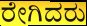
ರೇಗಿದರು